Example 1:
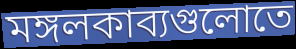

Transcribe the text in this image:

মঙ্গলকাব্যগুলোতে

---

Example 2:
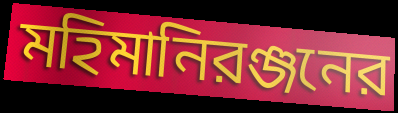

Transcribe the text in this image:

মহিমানিরঞ্জনের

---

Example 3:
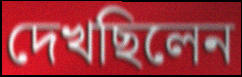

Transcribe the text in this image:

দেখছিলেন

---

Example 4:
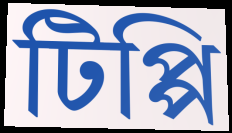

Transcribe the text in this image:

টিপ্পি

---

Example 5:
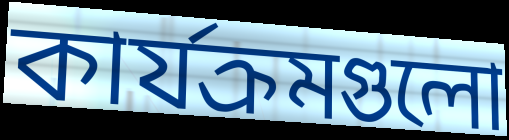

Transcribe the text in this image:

কার্যক্রমগুলো